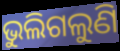
ଭୁଲିଗଲୁଣି